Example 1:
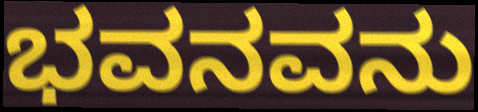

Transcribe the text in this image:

ಭವನವನು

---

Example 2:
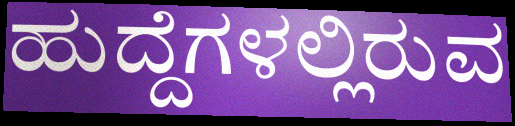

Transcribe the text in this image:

ಹುದ್ದೆಗಳಲ್ಲಿರುವ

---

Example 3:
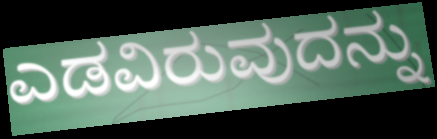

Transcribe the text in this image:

ಎಡವಿರುವುದನ್ನು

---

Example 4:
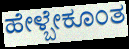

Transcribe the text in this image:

ಹೇಳ್ಬೇಕೂಂತ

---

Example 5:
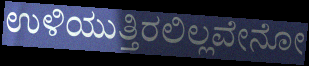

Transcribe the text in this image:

ಉಳಿಯುತ್ತಿರಲಿಲ್ಲವೇನೋ